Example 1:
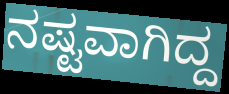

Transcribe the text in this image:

ನಷ್ಟವಾಗಿದ್ದ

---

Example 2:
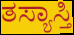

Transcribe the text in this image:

ತಸ್ಯಾಸ್ತಿ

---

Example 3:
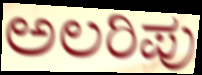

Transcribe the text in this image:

ಅಲರಿಪು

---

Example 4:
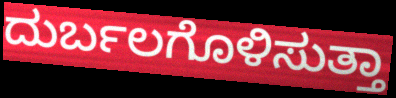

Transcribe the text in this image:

ದುರ್ಬಲಗೊಳಿಸುತ್ತಾ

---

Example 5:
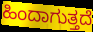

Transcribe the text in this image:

ಹಿಂದಾಗುತ್ತದೆ